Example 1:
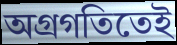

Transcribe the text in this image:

অগ্রগতিতেই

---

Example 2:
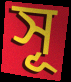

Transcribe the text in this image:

সূ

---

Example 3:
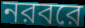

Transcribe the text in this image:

নরবরে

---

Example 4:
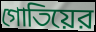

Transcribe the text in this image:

গোতিয়ের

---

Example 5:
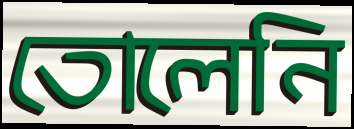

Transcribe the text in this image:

তোলেনি